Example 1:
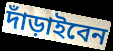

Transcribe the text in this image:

দাঁড়াইবেন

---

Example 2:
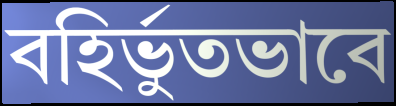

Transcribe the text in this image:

বহির্ভুতভাবে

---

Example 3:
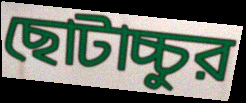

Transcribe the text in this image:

ছোটাচ্চুর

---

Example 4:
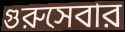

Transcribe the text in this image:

গুরুসেবার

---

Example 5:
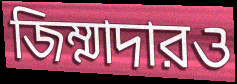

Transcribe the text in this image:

জিম্মাদারও